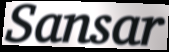
Sansar